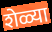
शेळ्या